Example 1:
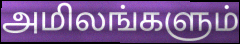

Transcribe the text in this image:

அமிலங்களும்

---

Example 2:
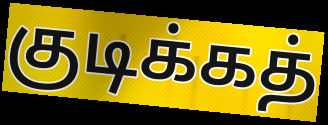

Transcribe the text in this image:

குடிக்கத்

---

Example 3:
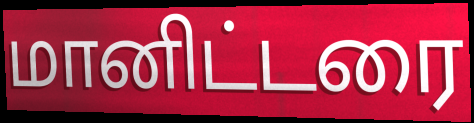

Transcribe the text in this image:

மானிட்டரை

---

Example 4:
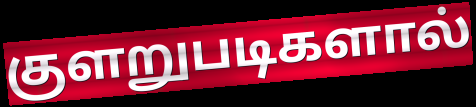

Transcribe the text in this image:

குளறுபடிகளால்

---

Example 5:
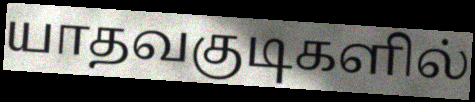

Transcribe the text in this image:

யாதவகுடிகளில்